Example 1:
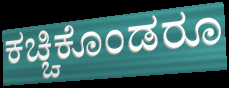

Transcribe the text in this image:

ಕಚ್ಚಿಕೊಂಡರೂ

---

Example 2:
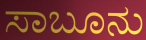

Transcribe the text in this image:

ಸಾಬೂನು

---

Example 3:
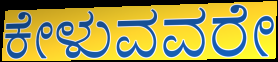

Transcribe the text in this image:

ಕೇಳುವವರೇ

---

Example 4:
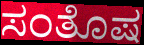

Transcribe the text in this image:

ಸಂತೊಷ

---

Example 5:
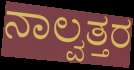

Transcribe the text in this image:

ನಾಲ್ವತ್ತರ